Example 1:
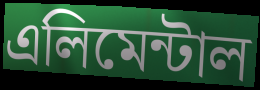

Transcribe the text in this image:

এলিমেন্টাল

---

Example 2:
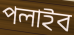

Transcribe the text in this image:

পলাইব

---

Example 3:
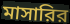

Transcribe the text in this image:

মাসারির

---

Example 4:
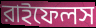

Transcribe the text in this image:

রাইফেলস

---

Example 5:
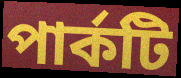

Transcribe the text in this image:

পার্কটি